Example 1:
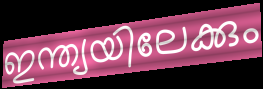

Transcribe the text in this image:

ഇന്ത്യയിലേക്കും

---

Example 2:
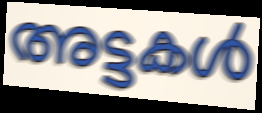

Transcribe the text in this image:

അട്ടകൾ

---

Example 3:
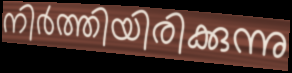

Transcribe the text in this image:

നിർത്തിയിരിക്കുന്നു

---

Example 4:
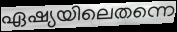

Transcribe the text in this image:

ഏഷ്യയിലെതന്നെ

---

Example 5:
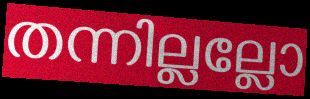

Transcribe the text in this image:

തന്നില്ലല്ലോ